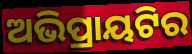
ଅଭିପ୍ରାୟଟିର